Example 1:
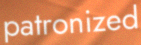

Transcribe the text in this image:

patronized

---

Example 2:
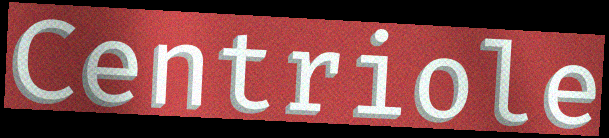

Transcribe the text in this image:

Centriole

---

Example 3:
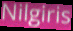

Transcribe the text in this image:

Nilgiris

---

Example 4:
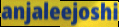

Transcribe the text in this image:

anjaleejoshi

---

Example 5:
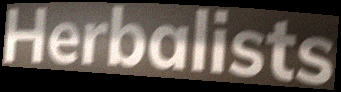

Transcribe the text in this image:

Herbalists